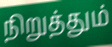
நிறுத்தும்